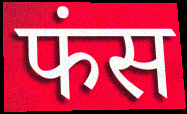
फंस